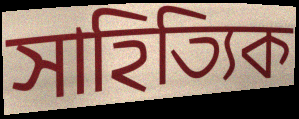
সাহিত্যিক